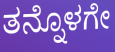
ತನ್ನೊಳಗೇ